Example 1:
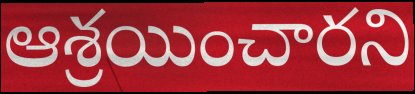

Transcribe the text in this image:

ఆశ్రయించారని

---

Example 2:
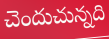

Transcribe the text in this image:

చెందుచున్నది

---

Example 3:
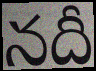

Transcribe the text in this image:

నదీ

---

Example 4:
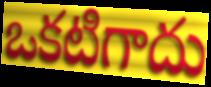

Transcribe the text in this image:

ఒకటిగాదు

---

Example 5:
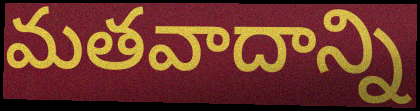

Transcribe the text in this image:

మతవాదాన్ని